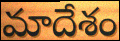
మాదేశం